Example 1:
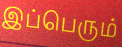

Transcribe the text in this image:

இப்பெரும்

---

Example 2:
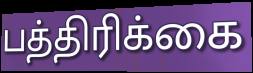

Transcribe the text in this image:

பத்திரிக்கை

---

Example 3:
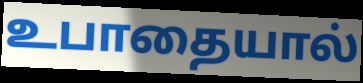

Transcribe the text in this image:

உபாதையால்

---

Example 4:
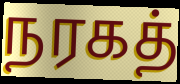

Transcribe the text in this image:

நரகத்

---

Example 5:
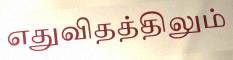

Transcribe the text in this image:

எதுவிதத்திலும்